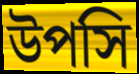
উপসি